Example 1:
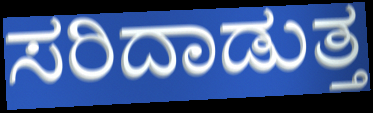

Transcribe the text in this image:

ಸರಿದಾಡುತ್ತ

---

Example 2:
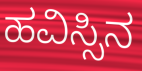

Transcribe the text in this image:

ಹವಿಸ್ಸಿನ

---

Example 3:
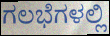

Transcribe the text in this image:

ಗಲಭೆಗಳಲ್ಲಿ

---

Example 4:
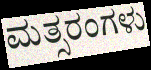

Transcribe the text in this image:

ಮತ್ಸರಂಗಳು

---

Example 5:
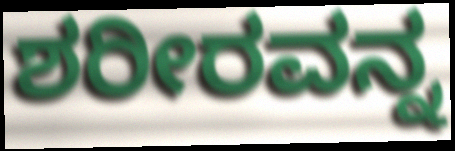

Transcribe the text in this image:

ಶರೀರವನ್ನ